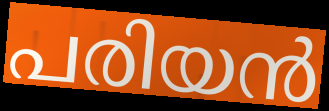
പരിയൻ